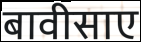
बावीसाए